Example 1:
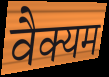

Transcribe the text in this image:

वैक्यम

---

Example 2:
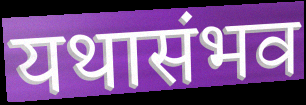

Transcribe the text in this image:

यथासंभव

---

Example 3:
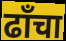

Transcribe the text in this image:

ढाँचा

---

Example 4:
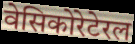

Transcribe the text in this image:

वेसिकोरेटेरल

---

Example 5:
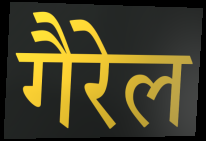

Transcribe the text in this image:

गैरेल